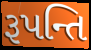
રૂપન્તિ